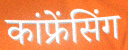
कांफ्रेंसिंग